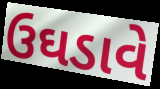
ઉઘડાવે